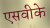
एसवीके